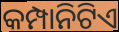
କମ୍ପାନିଟିଏ